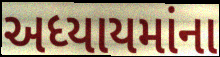
અધ્યાયમાંના